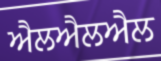
ਐਲਐਲਐਲ